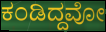
ಕಂಡಿದ್ದವೋ